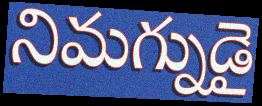
నిమగ్నుడై